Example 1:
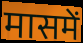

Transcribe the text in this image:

मासमें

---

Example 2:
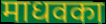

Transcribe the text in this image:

माधवका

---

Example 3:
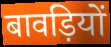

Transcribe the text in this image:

बावड़ियों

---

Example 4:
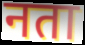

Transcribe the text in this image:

नता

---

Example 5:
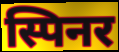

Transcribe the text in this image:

स्पिनर